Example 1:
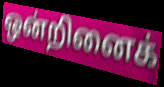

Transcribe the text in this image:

ஒன்றினைக்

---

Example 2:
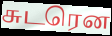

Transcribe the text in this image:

சுடரென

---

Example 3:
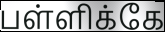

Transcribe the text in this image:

பள்ளிக்கே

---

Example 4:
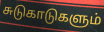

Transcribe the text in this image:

சுடுகாடுகளும்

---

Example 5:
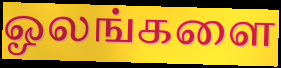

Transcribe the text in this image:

ஓலங்களை